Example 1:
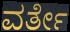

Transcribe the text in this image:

ವರ್ತೇ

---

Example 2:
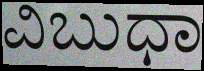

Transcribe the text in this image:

ವಿಬುಧಾ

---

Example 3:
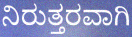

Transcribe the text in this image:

ನಿರುತ್ತರವಾಗಿ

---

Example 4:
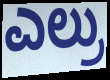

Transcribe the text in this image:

ಎಲ್ರು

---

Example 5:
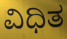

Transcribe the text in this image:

ವಿಧಿತ